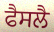
ਫੈਸਲੈ